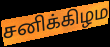
சனிக்கிழம